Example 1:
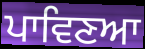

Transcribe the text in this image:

ਪਾਵਿਣਆ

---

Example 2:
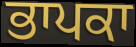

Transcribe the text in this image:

ਭਾਪਕਾ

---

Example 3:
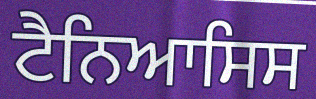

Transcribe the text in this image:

ਟੈਨਿਆਸਿਸ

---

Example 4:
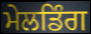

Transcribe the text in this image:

ਮੇਲਡਿੰਗ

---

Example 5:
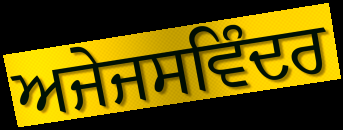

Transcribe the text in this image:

ਅਜੇਜਸਵਿੰਦਰ